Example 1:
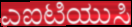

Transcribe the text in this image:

ಎಐಟಿಯುಸಿ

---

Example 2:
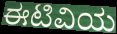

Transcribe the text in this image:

ಈಟಿವಿಯ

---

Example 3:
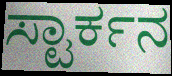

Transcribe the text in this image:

ಸ್ಟಾರ್ಕನ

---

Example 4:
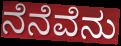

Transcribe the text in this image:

ನೆನೆವೆನು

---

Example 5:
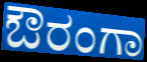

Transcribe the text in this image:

ಔರಂಗಾ